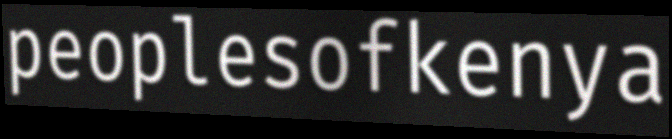
peoplesofkenya